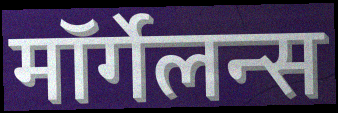
मॉर्गेलन्स